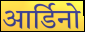
आर्डिनो